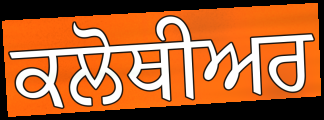
ਕਲੋਥੀਅਰ